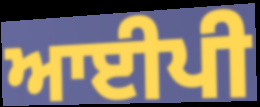
ਆਈਪੀ